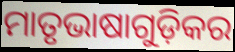
ମାତୃଭାଷାଗୁଡ଼ିକର